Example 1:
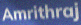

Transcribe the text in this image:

Amrithraj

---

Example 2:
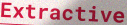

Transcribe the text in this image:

Extractive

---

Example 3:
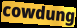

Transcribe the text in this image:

cowdung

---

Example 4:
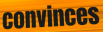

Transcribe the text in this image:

convinces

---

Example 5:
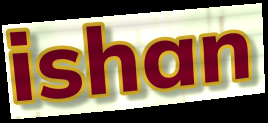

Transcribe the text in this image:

ishan